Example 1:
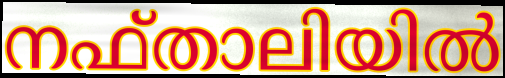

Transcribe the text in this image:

നഫ്താലിയിൽ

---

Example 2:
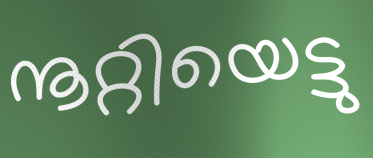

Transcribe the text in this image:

നൂറ്റിയെട്ടു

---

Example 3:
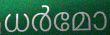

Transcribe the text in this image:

ധർമോ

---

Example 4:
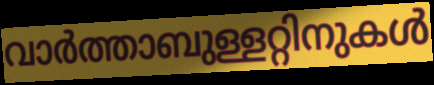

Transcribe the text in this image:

വാർത്താബുള്ളറ്റിനുകൾ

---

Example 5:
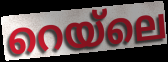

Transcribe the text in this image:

റെയ്ലെ